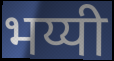
भय्यी